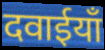
दवाईयाँ